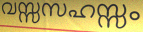
വസ്സസഹസ്സം